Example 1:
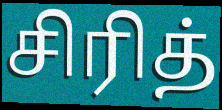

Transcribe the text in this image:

சிரித்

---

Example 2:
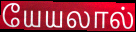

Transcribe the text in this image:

யேயலால்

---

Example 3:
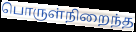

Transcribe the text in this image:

பொருள்நிறைந்த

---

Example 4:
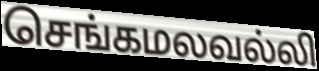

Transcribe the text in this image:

செங்கமலவல்லி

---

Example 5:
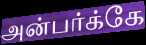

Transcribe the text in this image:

அன்பர்க்கே